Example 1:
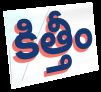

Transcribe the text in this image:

కిత్తీం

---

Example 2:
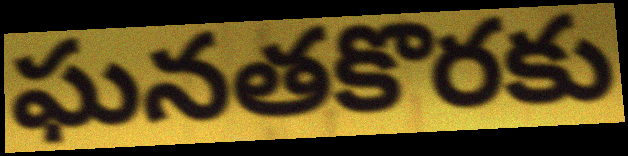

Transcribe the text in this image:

ఘనతకొరకు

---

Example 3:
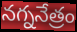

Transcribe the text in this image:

నగ్ననేత్రం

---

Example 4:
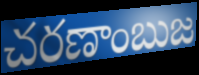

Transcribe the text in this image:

చరణాంబుజ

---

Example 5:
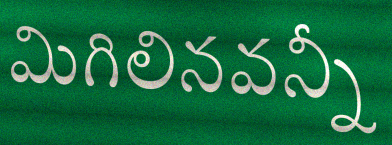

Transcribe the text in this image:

మిగిలినవన్నీ